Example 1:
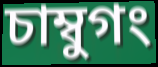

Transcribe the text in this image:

চাম্বুগং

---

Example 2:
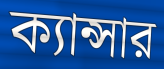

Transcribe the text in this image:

ক্যান্সার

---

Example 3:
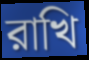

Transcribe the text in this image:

রাখি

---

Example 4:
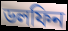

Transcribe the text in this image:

ডলফিন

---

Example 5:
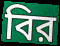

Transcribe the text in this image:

বির